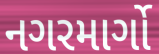
નગરમાર્ગો